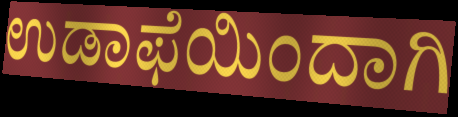
ಉಡಾಫೆಯಿಂದಾಗಿ